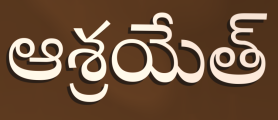
ఆశ్రయేత్